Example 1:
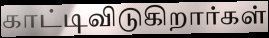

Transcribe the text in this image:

காட்டிவிடுகிறார்கள்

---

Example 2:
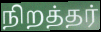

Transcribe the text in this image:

நிறத்தர்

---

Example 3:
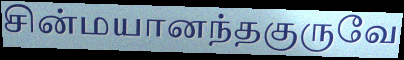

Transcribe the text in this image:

சின்மயானந்தகுருவே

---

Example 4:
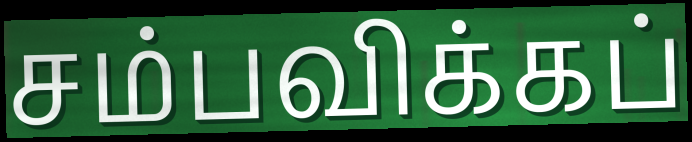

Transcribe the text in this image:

சம்பவிக்கப்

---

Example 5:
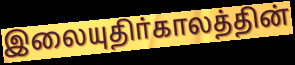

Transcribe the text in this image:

இலையுதிர்காலத்தின்